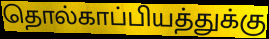
தொல்காப்பியத்துக்கு